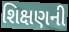
શિક્ષણની